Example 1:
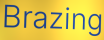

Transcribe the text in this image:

Brazing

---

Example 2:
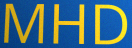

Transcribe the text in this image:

MHD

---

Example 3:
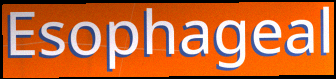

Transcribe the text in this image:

Esophageal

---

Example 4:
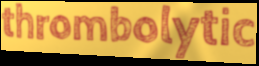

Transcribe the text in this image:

thrombolytic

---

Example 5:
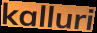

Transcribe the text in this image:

kalluri